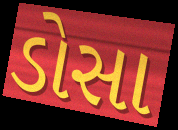
ડોસા